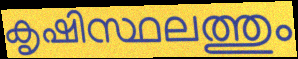
കൃഷിസ്ഥലത്തും